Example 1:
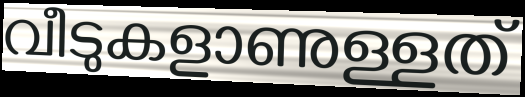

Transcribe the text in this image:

വീടുകളാണുള്ളത്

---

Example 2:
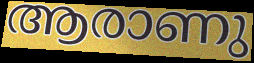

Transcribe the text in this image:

ആരാണു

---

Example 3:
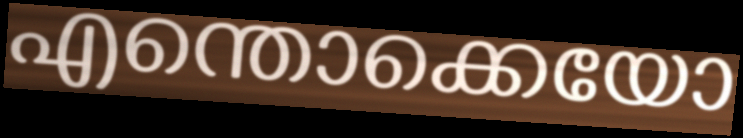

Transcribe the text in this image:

എന്തൊക്കെയോ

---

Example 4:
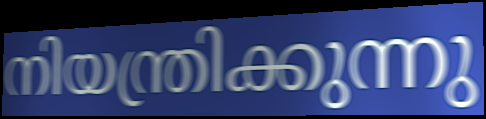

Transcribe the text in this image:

നിയന്ത്രിക്കുന്നു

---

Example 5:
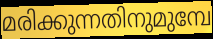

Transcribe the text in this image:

മരിക്കുന്നതിനുമുമ്പേ